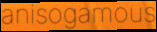
anisogamous